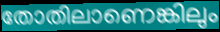
തോതിലാണെങ്കിലും